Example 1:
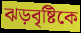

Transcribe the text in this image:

ঝড়বৃষ্টিকে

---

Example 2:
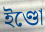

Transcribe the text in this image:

ইণ্ডো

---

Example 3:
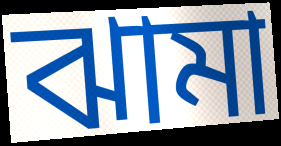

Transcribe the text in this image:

ঝামা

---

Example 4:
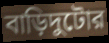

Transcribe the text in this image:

বাড়িদুটোর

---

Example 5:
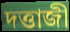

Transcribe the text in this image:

দত্তাজী